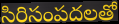
సిరిసంపదలతో